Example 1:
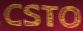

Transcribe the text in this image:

CSTO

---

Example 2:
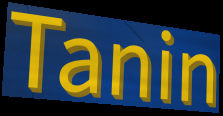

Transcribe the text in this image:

Tanin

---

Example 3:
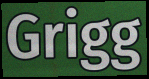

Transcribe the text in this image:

Grigg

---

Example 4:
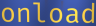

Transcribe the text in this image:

onload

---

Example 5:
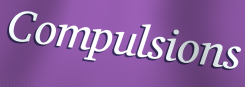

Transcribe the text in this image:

Compulsions